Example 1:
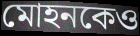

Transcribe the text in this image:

মোহনকেও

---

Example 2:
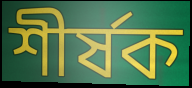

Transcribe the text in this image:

শীর্ষক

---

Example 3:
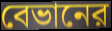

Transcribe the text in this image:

বেভানের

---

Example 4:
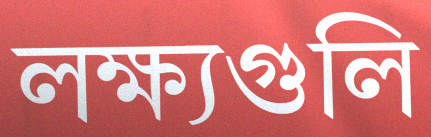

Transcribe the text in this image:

লক্ষ্যগুলি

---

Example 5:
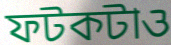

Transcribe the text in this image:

ফটকটাও